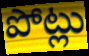
పోట్లు